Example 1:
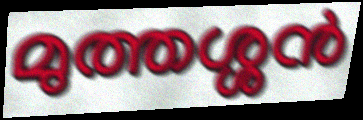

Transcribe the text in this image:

മുത്തശ്ശൻ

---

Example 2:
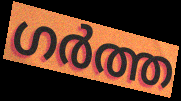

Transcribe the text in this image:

ഗർത്ത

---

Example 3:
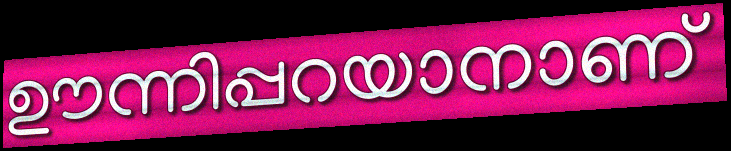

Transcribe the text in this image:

ഊന്നിപ്പറയാനാണ്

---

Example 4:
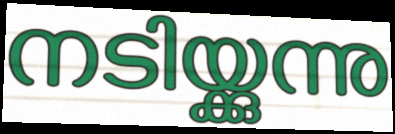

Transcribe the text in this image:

നടിയ്ക്കുന്നു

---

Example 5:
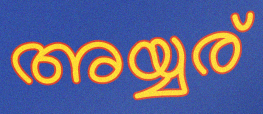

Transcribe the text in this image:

അയ്യര്